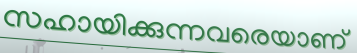
സഹായിക്കുന്നവരെയാണ്